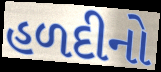
હળદીનો